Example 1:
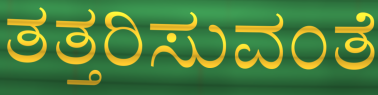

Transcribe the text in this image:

ತತ್ತರಿಸುವಂತೆ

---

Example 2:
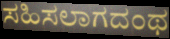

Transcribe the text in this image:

ಸಹಿಸಲಾಗದಂಥ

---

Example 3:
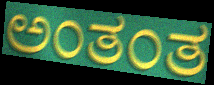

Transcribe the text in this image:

ಅಂತಂತ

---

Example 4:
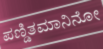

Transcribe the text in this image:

ಪಣ್ಡಿತಮಾನಿನೋ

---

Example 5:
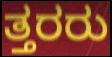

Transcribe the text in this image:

ತ್ತರರು